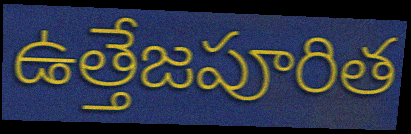
ఉత్తేజపూరిత